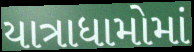
યાત્રાધામોમાં